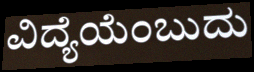
ವಿದ್ಯೆಯೆಂಬುದು